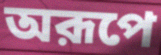
অরূপে